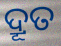
ଦ୍ରୂତ